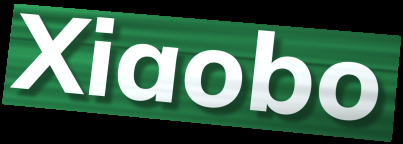
Xiaobo